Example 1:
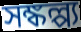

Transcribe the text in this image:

সঙ্কল্প্য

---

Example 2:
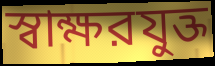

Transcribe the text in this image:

স্বাক্ষরযুক্ত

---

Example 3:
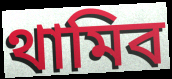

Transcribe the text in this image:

থামিব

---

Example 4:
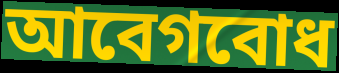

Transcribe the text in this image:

আবেগবোধ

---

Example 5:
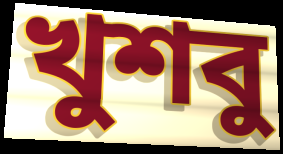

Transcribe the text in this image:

খুশবু